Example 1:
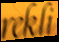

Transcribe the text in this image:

rekli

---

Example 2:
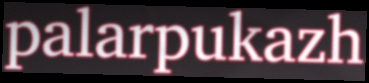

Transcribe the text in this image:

palarpukazh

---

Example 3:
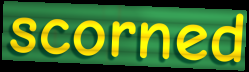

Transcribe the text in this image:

scorned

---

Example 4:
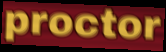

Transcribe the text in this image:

proctor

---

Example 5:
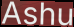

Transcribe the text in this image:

Ashu